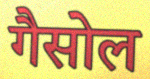
गैसोल